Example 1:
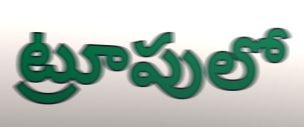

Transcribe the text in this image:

ట్రూపులో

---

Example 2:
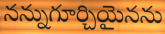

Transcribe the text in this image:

నన్నుగూర్చియైనను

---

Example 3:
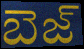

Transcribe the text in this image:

బెజ్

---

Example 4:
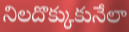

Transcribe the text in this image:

నిలదొక్కుకునేలా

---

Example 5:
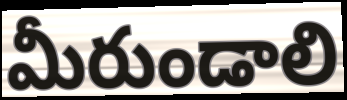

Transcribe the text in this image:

మీరుండాలి